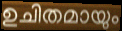
ഉചിതമായും